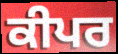
ਕੀਪਰ